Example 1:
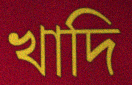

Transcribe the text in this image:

খাদি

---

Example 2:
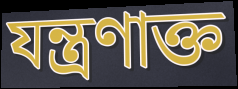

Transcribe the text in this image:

যন্ত্রণাক্ত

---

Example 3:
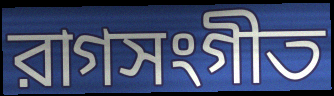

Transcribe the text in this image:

রাগসংগীত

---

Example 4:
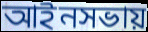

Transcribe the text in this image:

আইনসভায়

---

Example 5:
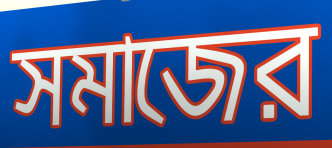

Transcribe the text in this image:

সমাজের